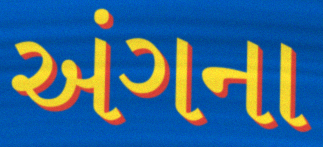
અંગના